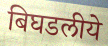
बिघडलीये